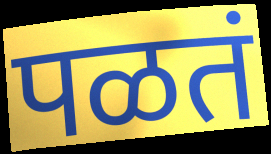
पळतं